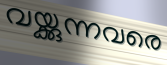
വയ്ക്കുന്നവരെ